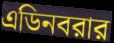
এডিনবরার